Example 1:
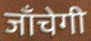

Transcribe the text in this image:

जाँचेगी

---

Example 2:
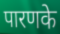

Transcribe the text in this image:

पारणके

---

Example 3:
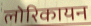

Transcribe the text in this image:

लोरिकायन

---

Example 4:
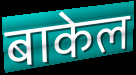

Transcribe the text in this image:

बाकेल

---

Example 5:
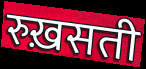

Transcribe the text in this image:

रुख़सती